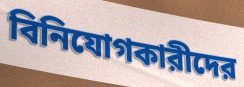
বিনিযোগকারীদের